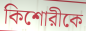
কিশোরীকে